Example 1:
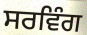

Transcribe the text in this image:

ਸਰਵਿੰਗ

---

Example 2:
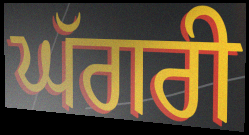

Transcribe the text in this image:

ਘੱਗਰੀ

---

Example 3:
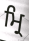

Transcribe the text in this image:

ਮ੍ਰਿ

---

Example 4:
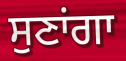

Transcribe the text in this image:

ਸੁਣਾਂਗਾ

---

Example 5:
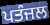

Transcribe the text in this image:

ਪਤੰਜਲ